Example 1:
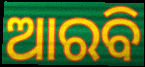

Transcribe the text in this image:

ଆରବି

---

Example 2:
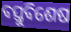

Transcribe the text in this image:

ବସ୍ତୁବିଶେଷ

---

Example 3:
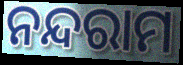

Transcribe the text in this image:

ନନ୍ଦରାମ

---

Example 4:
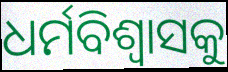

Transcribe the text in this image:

ଧର୍ମବିଶ୍ଵାସକୁ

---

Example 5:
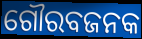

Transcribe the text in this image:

ଗୌରବଜନକ